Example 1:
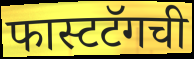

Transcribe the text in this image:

फास्टटॅगची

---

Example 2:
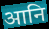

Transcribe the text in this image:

आनि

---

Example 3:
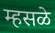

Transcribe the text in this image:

म्हसळे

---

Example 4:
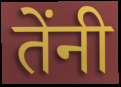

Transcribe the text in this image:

तेंनी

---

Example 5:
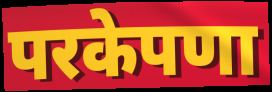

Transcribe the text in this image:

परकेपणा